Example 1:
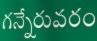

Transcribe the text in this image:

గన్నేరువరం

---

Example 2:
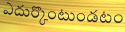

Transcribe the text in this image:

ఎదుర్కొంటుండటం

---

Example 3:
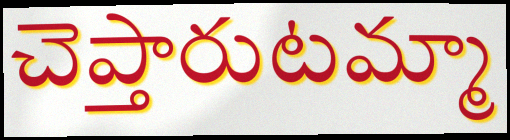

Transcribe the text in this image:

చెప్తారుటమ్మా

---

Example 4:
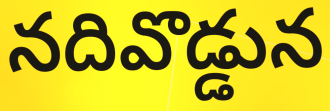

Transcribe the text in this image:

నదివొడ్డున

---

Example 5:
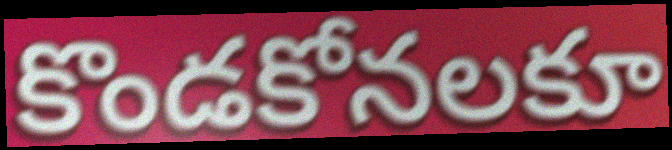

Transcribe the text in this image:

కొండకోనలకూ